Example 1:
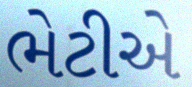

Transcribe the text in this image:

ભેટીએ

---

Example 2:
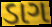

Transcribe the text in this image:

ડાગ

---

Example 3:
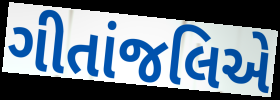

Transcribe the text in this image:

ગીતાંજલિએ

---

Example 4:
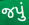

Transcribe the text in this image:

જપું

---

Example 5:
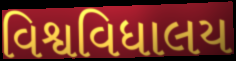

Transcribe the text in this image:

વિશ્વવિધાલય